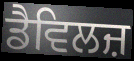
ਡੈਵਿਲਜ਼